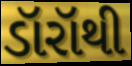
ડૉરૉથી